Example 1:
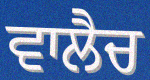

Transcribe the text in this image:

ਵਾਲੈਚ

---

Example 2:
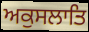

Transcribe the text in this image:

ਅਕੁਸਲਾਤਿ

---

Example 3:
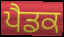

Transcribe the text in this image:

ਪੈਡਕ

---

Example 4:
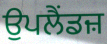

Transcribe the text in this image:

ਉਪਲੈਂਡਜ਼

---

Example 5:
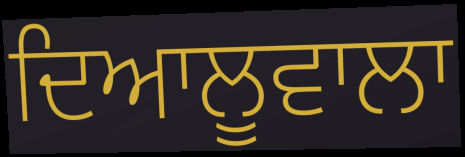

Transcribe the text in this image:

ਦਿਆਲੂਵਾਲਾ